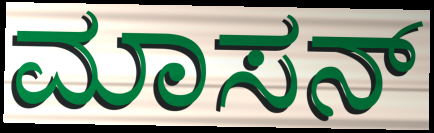
ಮಾಸನ್